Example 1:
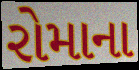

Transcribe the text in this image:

રોમાના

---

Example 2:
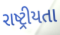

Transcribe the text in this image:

રાષ્ટ્રીયતા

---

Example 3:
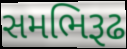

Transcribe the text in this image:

સમભિરૂઢ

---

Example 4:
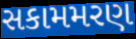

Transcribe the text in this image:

સકામમરણ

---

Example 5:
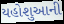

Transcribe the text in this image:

યહોશુઆની